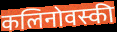
कलिनोवस्की